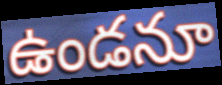
ఉండనూ